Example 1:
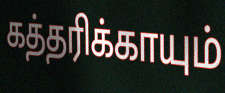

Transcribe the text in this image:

கத்தரிக்காயும்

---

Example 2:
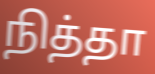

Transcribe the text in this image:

நித்தா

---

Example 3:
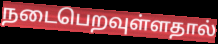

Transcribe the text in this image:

நடைபெறவுள்ளதால்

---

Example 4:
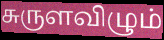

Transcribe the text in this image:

சுருளவிழும்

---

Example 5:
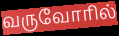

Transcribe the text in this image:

வருவோரில்